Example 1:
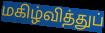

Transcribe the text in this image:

மகிழ்வித்துப்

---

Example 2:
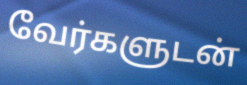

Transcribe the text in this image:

வேர்களுடன்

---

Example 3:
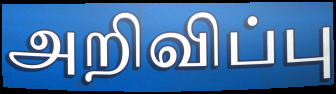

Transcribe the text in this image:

அறிவிப்பு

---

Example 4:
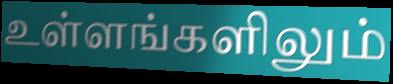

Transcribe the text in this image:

உள்ளங்களிலும்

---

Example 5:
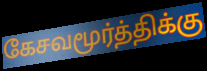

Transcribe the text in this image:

கேசவமூர்த்திக்கு